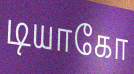
டியாகோ